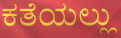
ಕತೆಯಲ್ಲು